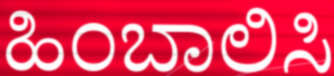
ಹಿಂಬಾಲಿಸಿ